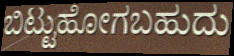
ಬಿಟ್ಟುಹೋಗಬಹುದು